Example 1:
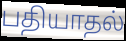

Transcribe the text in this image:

பதியாதல்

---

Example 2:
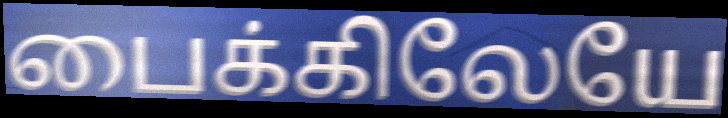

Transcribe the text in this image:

பைக்கிலேயே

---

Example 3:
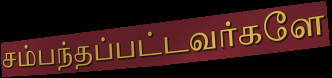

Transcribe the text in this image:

சம்பந்தப்பட்டவர்களே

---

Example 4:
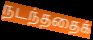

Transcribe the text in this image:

நடந்ததைக்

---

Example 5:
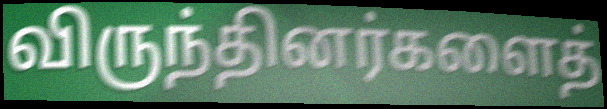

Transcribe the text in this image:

விருந்தினர்களைத்